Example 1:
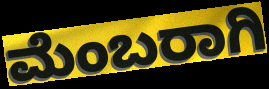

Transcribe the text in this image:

ಮೆಂಬರಾಗಿ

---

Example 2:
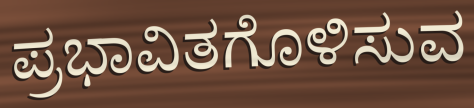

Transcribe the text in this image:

ಪ್ರಭಾವಿತಗೊಳಿಸುವ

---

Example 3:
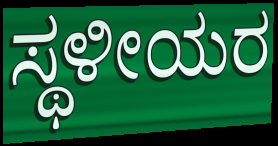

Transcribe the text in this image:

ಸ್ಥಳೀಯರ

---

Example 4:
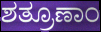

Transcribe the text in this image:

ಶತ್ರೂಣಾಂ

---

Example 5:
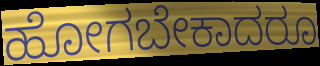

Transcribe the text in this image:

ಹೋಗಬೇಕಾದರೂ